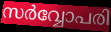
സർവ്വോപരി